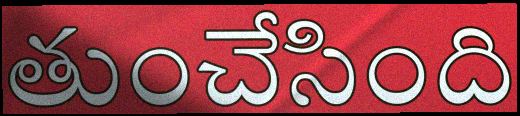
తుంచేసింది